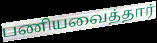
பணியவைத்தார்